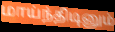
மாய்ந்திடினும்